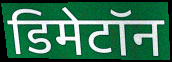
डिमेटॉन